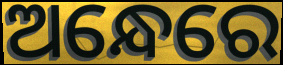
ଅନ୍ଧେରେ